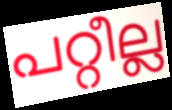
പറ്റീല്ല